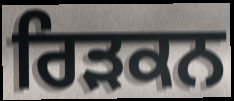
ਰਿੜਕਨ